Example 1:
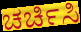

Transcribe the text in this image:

ಚರ್ಚಿಸಿ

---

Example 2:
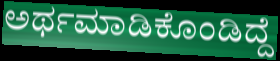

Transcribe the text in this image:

ಅರ್ಥಮಾಡಿಕೊಂಡಿದ್ದೆ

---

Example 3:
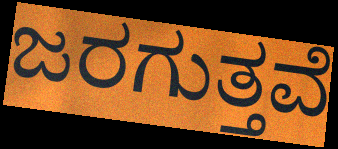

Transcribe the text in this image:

ಜರಗುತ್ತವೆ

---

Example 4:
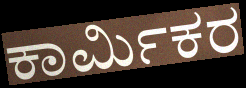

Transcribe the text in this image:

ಕಾರ್ಮಿಕರ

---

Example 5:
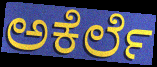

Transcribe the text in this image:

ಅಕೆರ್ಲೆ